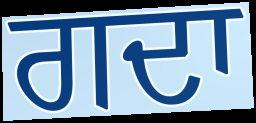
ਗਦਾ